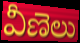
వీణెలు